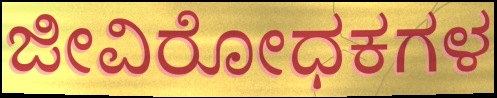
ಜೀವಿರೋಧಕಗಳ